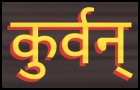
कुर्वन्